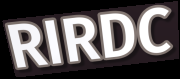
RIRDC